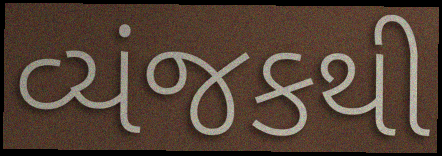
વ્યંજકથી